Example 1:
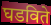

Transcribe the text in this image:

घडविते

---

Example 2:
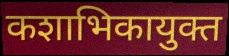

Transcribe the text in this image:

कशाभिकायुक्त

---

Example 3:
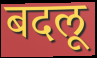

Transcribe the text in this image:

बदलू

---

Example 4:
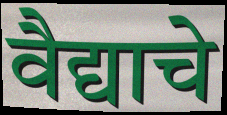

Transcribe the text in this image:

वैद्याचे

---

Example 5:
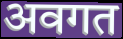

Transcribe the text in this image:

अवगत